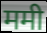
ममी